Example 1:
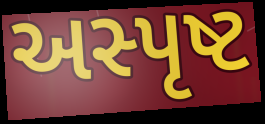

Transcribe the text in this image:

અસ્પૃષ્ટ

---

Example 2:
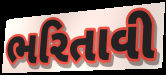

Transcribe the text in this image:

ભરિતાવી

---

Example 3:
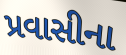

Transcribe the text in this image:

પ્રવાસીના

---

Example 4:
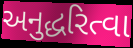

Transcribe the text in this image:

અનુદ્ધરિત્વા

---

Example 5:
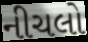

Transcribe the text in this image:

નીચલો